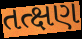
તત્ક્ષણ